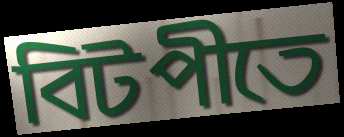
বিটপীতে